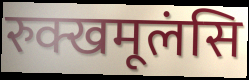
रुक्खमूलंसि